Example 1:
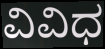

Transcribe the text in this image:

ವಿವಿಧ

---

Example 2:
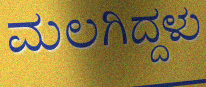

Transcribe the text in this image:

ಮಲಗಿದ್ದಳು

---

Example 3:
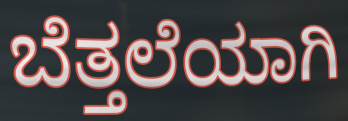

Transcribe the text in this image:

ಬೆತ್ತಲೆಯಾಗಿ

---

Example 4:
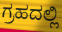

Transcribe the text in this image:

ಗ್ರಹದಲ್ಲಿ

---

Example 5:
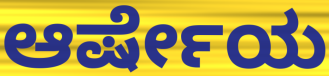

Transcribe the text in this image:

ಆರ್ಷೇಯ